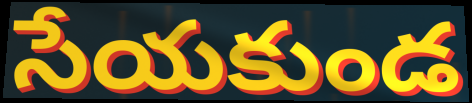
సేయకుండ